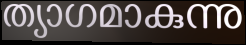
ത്യാഗമാകുന്നു